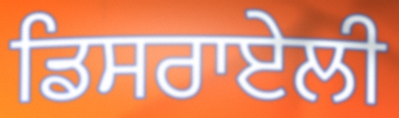
ਡਿਸਰਾਏਲੀ